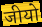
जीयो